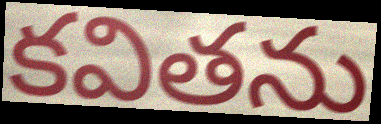
కవితను